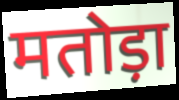
मतोड़ा